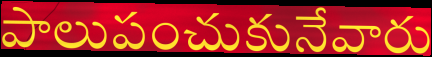
పాలుపంచుకునేవారు